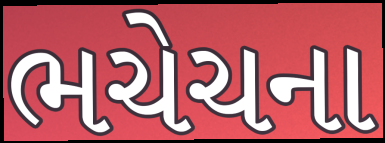
ભચેચના